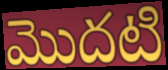
మొదటి